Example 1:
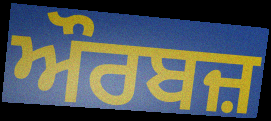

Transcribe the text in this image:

ਔਰਬਜ਼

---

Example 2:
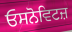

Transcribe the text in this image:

ਓਸਨੋਵਿਟਜ਼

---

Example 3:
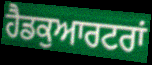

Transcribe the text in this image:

ਹੈਡਕੁਆਰਟਰਾਂ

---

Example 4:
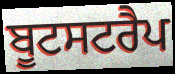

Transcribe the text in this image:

ਬੂਟਸਟਰੈਪ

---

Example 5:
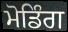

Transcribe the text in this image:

ਮੋਡਿੰਗ